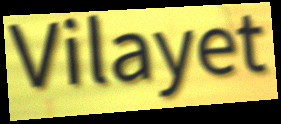
Vilayet